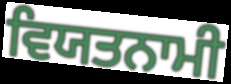
ਵਿਯਤਨਾਮੀ